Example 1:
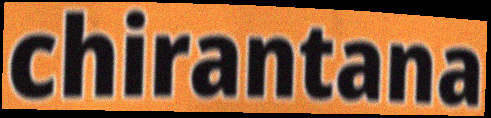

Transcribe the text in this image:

chirantana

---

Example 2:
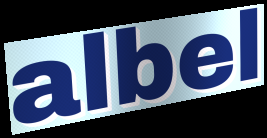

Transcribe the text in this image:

albel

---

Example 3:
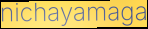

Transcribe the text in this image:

nichayamaga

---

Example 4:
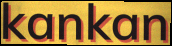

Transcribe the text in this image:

kankan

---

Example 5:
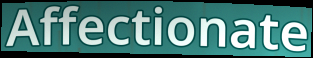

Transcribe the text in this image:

Affectionate